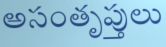
అసంతృప్తులు